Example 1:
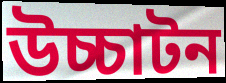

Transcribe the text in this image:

উচ্চাটন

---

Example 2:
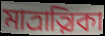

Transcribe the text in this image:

মাত্রাত্মিকা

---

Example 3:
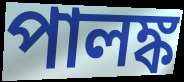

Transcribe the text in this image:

পালঙ্ক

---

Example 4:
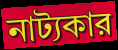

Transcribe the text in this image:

নাট্যকার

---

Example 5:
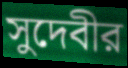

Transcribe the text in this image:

সুদেবীর